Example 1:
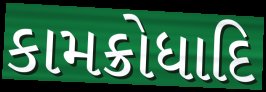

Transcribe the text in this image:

કામક્રોધાદિ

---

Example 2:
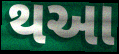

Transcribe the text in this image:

થઆ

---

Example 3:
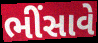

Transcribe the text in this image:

ભીંસાવે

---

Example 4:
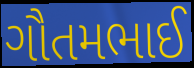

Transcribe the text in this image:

ગૌતમભાઈ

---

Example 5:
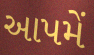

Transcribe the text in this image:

આપમેં